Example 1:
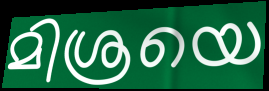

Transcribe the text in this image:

മിശ്രയെ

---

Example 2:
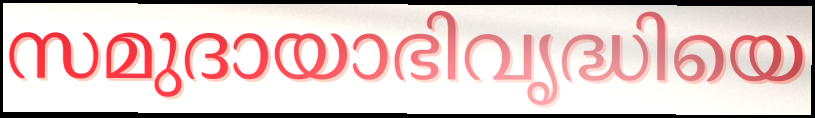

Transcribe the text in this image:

സമുദായാഭിവൃദ്ധിയെ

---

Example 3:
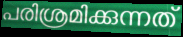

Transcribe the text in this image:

പരിശ്രമിക്കുന്നത്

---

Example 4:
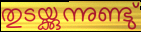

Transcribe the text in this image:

തുടയ്ക്കുന്നുണ്ടു്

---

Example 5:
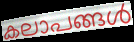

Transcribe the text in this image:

കലാപങ്ങൾ